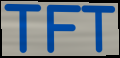
TFT